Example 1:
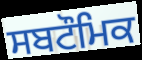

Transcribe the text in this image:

ਸਬਟੌਮਿਕ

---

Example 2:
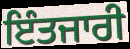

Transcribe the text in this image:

ਇੰਤਜਾਰੀ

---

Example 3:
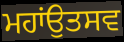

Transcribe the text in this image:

ਮਹਾਂਉਤਸਵ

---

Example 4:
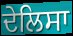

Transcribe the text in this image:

ਦੇਲਿਸਾ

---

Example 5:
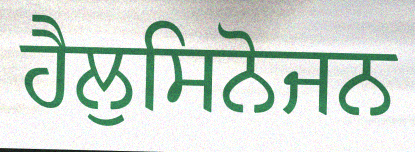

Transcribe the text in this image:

ਹੈਲੁਸਿਨੋਜਨ